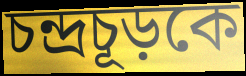
চন্দ্রচূড়কে